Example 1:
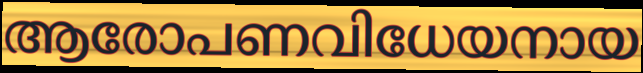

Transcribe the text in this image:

ആരോപണവിധേയനായ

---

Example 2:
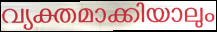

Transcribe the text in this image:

വ്യക്തമാക്കിയാലും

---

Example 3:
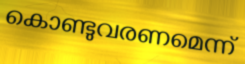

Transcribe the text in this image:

കൊണ്ടുവരണമെന്ന്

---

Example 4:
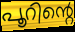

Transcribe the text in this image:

പൂറിന്റെ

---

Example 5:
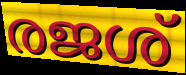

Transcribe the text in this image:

രജശ്